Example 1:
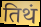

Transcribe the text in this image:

तिथं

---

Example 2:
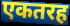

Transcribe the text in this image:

एकतरह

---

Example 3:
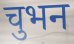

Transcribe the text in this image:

चुभन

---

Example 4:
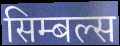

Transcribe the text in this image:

सिम्बल्स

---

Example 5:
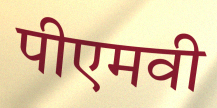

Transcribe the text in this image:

पीएमवी